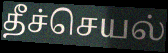
தீச்செயல்